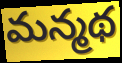
మన్మథ